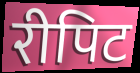
रीपिट